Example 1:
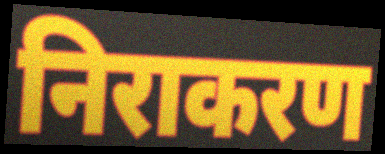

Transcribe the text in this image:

निराकरण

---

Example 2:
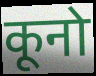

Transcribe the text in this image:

कूनो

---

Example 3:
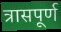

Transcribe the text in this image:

त्रासपूर्ण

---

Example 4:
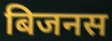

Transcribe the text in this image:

बिजनस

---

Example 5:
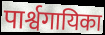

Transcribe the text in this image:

पार्श्वगायिका